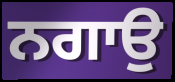
ਨਗਾਉ